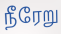
நீரேறு